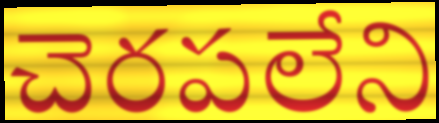
చెరపలేని